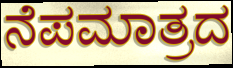
ನೆಪಮಾತ್ರದ